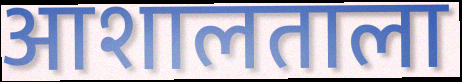
आशालताला